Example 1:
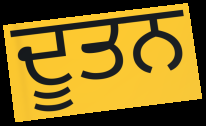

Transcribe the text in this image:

ਦੂਤਨ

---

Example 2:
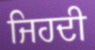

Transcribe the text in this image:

ਜਿਹਦੀ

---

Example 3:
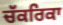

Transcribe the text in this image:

ਚੱਕਰਿਕਾ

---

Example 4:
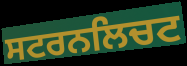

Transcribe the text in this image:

ਸਟਰਨਲਿਚਟ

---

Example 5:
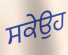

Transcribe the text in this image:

ਸਕੇਉਹ